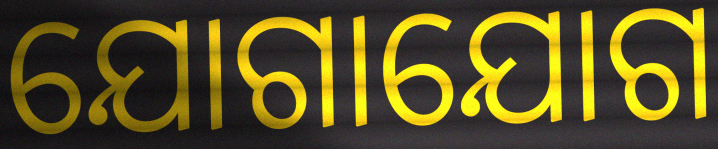
ଯୋଗାଯୋଗ